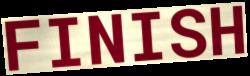
FINISH